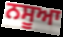
ਨਸੂਆ